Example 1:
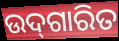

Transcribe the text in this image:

ଉଦ୍‌ଗାରିତ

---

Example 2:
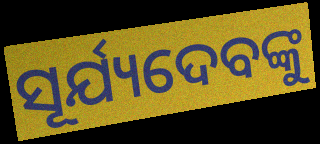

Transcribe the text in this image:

ସୂର୍ଯ୍ୟଦେବଙ୍କୁ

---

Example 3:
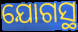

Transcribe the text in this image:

ଯୋଗସ୍ଥ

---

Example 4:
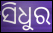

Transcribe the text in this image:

ସିଧୁର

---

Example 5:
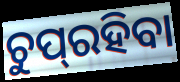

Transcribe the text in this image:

ଚୁପ୍‌ରହିବା